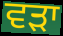
ਵੜਾ